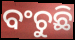
ବଂଚୁଛି